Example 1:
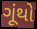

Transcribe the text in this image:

ગૂંથો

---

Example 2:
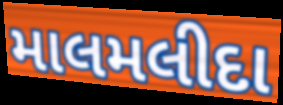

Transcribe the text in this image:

માલમલીદા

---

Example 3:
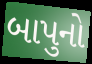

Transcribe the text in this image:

બાપુનો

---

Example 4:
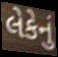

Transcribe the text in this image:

લેકેનું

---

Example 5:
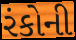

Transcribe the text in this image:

રંકોની